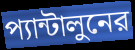
প্যান্টালুনের